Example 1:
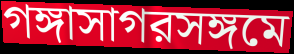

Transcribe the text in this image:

গঙ্গাসাগরসঙ্গমে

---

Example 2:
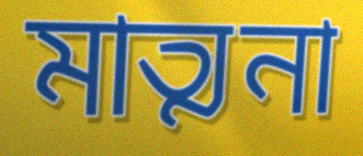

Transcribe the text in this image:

মাত্মনা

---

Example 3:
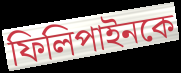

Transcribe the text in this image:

ফিলিপাইনকে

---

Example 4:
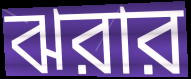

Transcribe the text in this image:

ঝরার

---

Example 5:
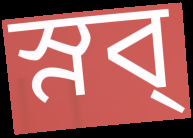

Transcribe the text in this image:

স্নব্